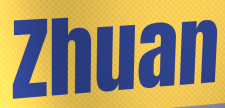
Zhuan